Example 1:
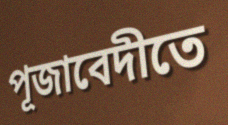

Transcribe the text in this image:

পূজাবেদীতে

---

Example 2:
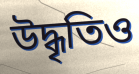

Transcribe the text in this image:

উদ্ধৃতিও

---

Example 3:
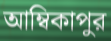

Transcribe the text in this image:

আম্বিকাপুর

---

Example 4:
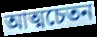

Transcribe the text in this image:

আত্মচেতন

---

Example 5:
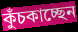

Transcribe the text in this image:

কুঁচকাচ্ছেন